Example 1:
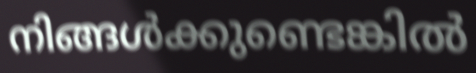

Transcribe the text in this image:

നിങ്ങൾക്കുണ്ടെങ്കിൽ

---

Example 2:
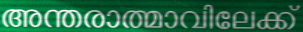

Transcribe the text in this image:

അന്തരാത്മാവിലേക്ക്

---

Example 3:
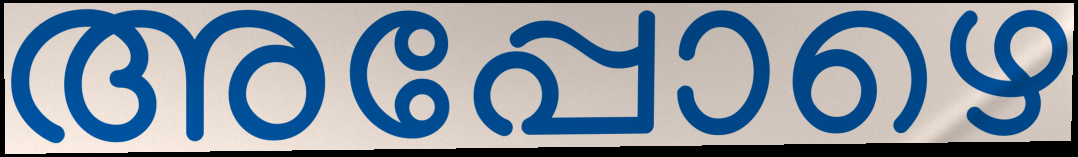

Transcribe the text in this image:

അപ്പോഴെ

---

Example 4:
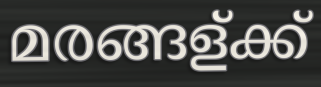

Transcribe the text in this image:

മരങ്ങള്ക്ക്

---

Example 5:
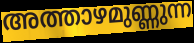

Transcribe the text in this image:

അത്താഴമുണ്ണുന്ന